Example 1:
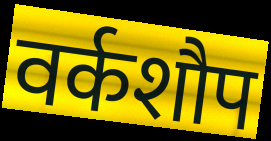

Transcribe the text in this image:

वर्कशौप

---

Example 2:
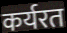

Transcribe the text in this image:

कर्यरत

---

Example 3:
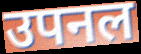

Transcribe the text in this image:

उपनल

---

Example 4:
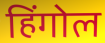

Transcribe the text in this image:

हिंगोल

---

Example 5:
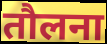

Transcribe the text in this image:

तौलना